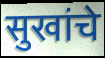
सुखांचे